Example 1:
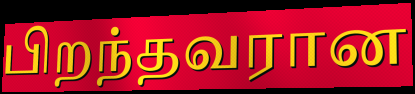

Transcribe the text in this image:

பிறந்தவரான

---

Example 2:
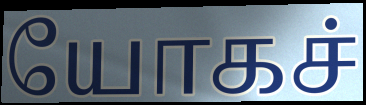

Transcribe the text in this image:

யோகச்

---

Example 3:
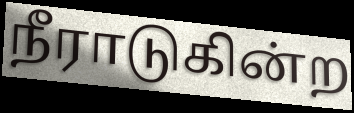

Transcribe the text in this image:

நீராடுகின்ற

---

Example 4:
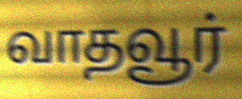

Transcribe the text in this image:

வாதவூர்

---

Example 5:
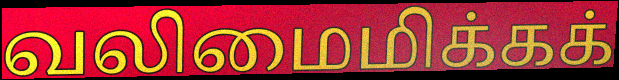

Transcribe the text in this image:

வலிமைமிக்கக்